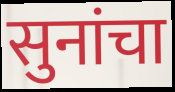
सुनांचा